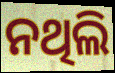
ନଥିଲି